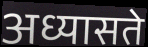
अध्यासते